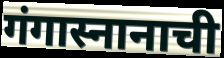
गंगास्नानाची